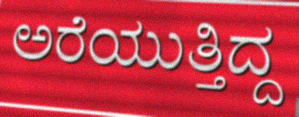
ಅರೆಯುತ್ತಿದ್ದ